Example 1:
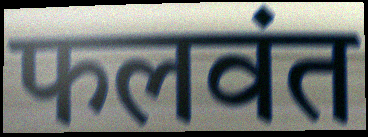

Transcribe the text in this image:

फलवंत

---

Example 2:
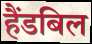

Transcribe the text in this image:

हैंडबिल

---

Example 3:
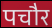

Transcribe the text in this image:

पचौर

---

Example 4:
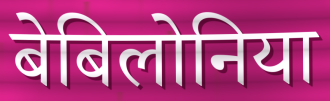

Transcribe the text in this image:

बेबिलोनिया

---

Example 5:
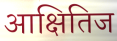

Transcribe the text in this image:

आक्षितिज